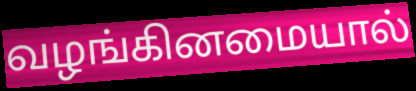
வழங்கினமையால்